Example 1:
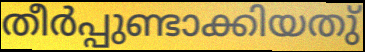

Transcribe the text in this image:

തീർപ്പുണ്ടാക്കിയതു്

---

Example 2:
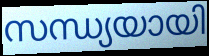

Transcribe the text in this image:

സന്ധ്യയായി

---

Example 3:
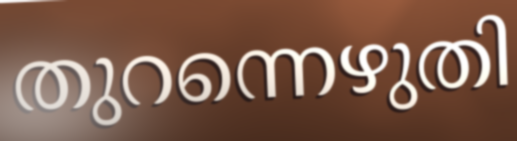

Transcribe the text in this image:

തുറന്നെഴുതി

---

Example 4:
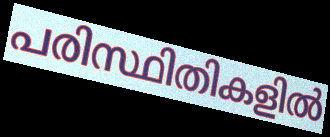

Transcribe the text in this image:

പരിസ്ഥിതികളിൽ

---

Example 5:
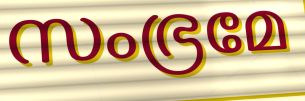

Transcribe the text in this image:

സംഭ്രമേ